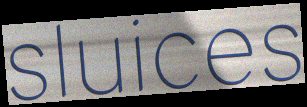
sluices